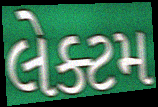
લેક્ટમ